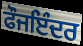
ਫੌਜਇੰਦਰ